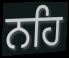
ਨਹਿ